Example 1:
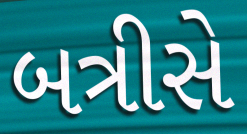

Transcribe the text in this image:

બત્રીસે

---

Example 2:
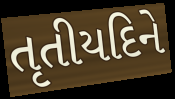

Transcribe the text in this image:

તૃતીયદિને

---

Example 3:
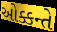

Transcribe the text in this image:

ઓક્કન્તે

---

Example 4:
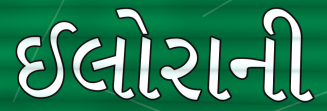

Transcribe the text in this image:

ઈલોરાની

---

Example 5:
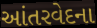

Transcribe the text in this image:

આંતરવેદના